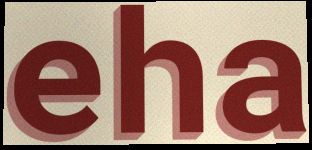
eha